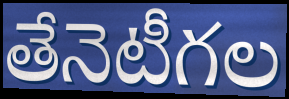
తేనెటీగల